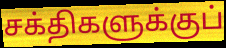
சக்திகளுக்குப்